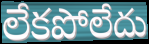
లేకపోలేదు